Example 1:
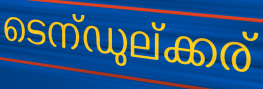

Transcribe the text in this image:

ടെന്ഡുല്ക്കര്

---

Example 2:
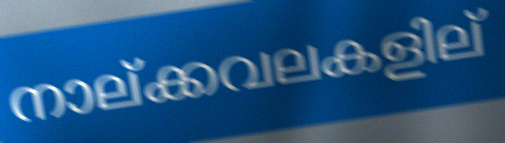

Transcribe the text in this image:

നാല്ക്കവലകളില്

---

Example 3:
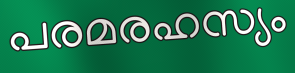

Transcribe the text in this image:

പരമരഹസ്യം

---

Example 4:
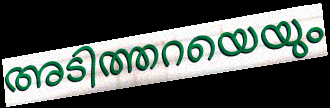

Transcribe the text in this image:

അടിത്തറയെയും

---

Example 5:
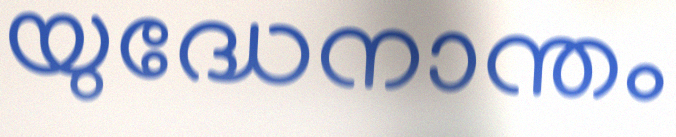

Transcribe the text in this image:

യുദ്ധേനാന്തം